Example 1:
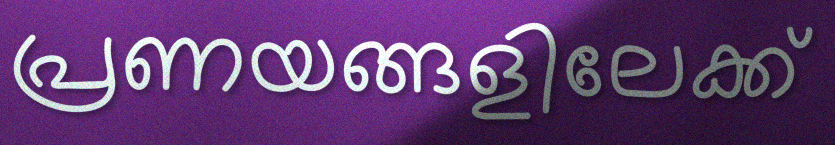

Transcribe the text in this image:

പ്രണയങ്ങളിലേക്ക്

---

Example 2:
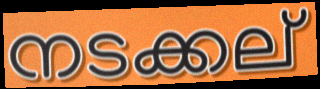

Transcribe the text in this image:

നടക്കല്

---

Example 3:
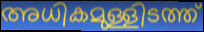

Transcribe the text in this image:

അധികമുള്ളിടത്ത്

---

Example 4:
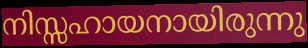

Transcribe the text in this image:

നിസ്സഹായനായിരുന്നു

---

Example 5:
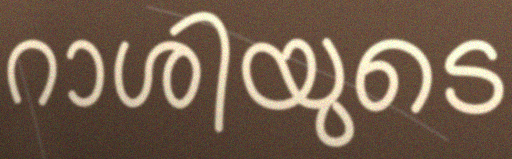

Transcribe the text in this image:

റാശിയുടെ